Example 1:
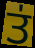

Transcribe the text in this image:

उ॑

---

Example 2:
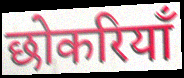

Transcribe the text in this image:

छोकरियाँ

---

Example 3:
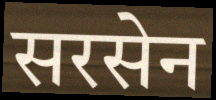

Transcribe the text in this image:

सरसेन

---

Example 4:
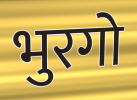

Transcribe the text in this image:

भुरगो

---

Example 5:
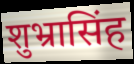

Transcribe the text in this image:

शुभ्रासिंह